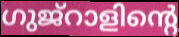
ഗുജ്റാളിന്റെ